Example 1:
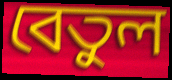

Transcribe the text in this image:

বেতুল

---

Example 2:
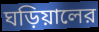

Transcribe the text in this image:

ঘড়িয়ালের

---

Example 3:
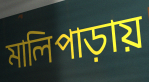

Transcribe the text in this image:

মালিপাড়ায়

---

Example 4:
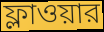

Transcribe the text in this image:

ফ্লাওয়ার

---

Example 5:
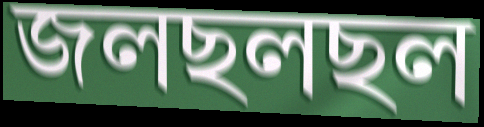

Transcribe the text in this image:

জলছলছল